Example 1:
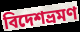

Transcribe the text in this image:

বিদেশভ্রমণ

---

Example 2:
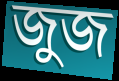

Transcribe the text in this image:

জুজ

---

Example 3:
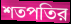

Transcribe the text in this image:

শতপতির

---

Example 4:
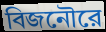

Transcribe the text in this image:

বিজনৌরে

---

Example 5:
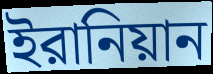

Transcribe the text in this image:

ইরানিয়ান